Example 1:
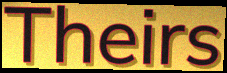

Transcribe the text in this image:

Theirs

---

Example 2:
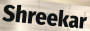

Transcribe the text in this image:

Shreekar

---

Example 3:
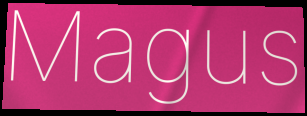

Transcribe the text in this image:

Magus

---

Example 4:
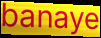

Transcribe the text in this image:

banaye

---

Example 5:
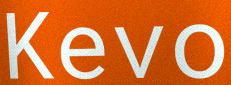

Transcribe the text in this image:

Kevo